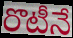
రొటీనే